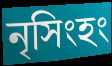
নৃসিংহং